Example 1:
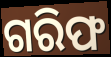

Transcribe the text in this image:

ଗରିଫ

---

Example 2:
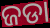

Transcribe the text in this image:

ଜଡା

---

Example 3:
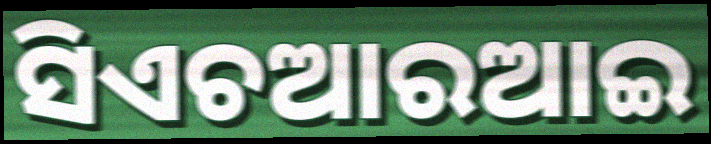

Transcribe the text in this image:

ସିଏଚଆରଆଇ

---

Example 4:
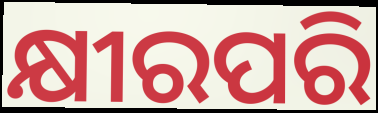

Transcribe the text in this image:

କ୍ଷୀରପରି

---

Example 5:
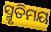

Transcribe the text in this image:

ସ୍ମୃତିମୟ